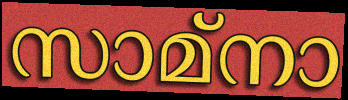
സാമ്നാ